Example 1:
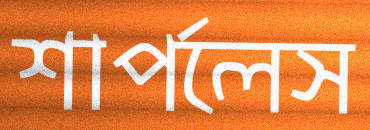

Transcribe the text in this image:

শার্পলেস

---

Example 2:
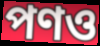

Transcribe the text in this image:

পণও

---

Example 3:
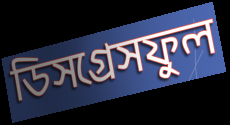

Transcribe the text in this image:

ডিসগ্রেসফুল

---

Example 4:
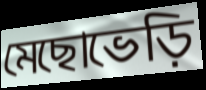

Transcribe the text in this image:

মেছোভেড়ি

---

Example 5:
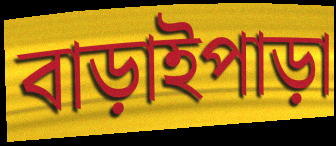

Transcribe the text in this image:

বাড়াইপাড়া